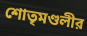
শোতৃমণ্ডলীর